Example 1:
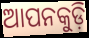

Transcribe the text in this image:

ଆପନକୁଡ଼ି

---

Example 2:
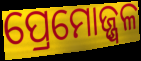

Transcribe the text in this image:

ପ୍ରେମୋଜ୍ଜ୍ୱଳ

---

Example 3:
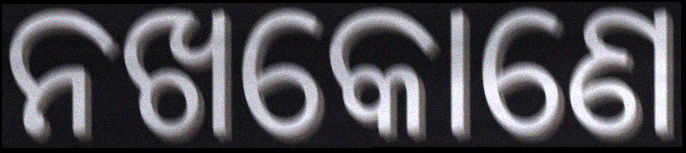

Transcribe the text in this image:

ନଖକୋଣେ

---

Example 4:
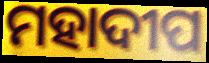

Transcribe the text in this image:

ମହାଦୀପ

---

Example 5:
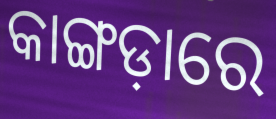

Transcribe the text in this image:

କାଙ୍ଗଡ଼ାରେ